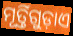
ମୂର୍ତ୍ତିଗୁଡ଼ାଏ